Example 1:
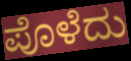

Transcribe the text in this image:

ಪೊಳೆದು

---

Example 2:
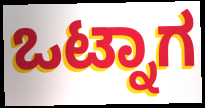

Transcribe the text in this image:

ಒಟ್ನಾಗ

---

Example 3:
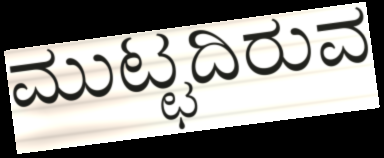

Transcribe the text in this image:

ಮುಟ್ಟದಿರುವ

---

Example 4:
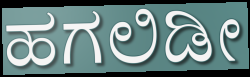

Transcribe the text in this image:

ಹಗಲಿಡೀ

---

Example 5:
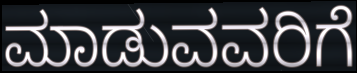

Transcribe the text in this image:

ಮಾಡುವವರಿಗೆ